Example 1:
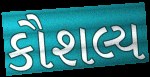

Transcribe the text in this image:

કૌશલ્ય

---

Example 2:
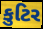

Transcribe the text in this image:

કુટિર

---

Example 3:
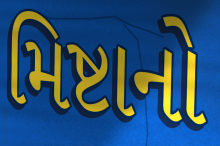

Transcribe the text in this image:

મિષ્ટાનો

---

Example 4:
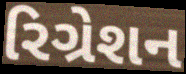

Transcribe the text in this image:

રિગ્રેશન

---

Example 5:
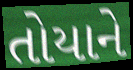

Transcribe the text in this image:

તોયાને